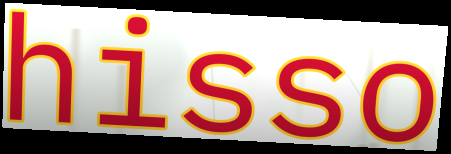
hisso